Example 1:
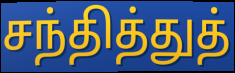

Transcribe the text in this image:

சந்தித்துத்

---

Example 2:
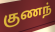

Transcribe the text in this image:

குணந்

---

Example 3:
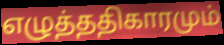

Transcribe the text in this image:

எழுத்ததிகாரமும்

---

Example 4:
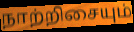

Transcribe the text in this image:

நாற்றிசையும்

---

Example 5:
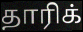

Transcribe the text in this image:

தாரிக்